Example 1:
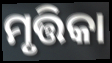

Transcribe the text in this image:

ମୃତ୍ତିକା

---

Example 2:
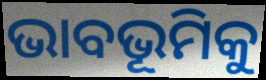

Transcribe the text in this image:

ଭାବଭୂମିକୁ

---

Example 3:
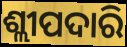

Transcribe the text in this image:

ଶ୍ଲୀପଦାରି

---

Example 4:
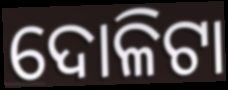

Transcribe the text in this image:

ଦୋଳିଟା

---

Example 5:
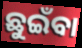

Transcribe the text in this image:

ଛୁଇଁବା